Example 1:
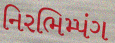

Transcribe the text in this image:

નિરભિમ્પંગ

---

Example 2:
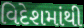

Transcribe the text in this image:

વિદેશમાંથી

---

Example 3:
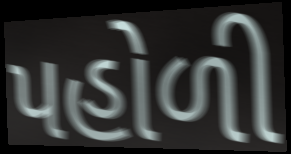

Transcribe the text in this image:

પહોળી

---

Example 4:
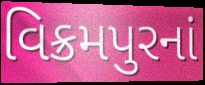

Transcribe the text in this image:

વિક્રમપુરનાં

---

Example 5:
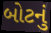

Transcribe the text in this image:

બોટનું